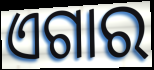
ଏଗାର